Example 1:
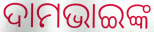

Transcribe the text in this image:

ଦାମଭାଇଙ୍କ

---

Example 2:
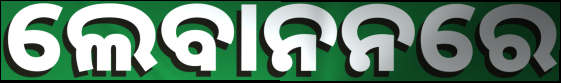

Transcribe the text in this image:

ଲେବାନନରେ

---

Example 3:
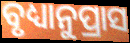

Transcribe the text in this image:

ବୃଧ୍ୟାନୁପ୍ରାସ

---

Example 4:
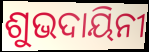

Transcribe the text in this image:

ଶୁଭଦାୟିନୀ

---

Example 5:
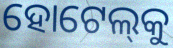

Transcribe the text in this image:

ହୋଟେଲ୍‌କୁ